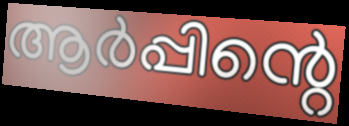
ആർപ്പിന്റെ